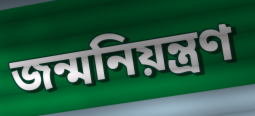
জন্মনিয়ন্ত্রণ